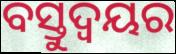
ବସ୍ତୁଦ୍ୱୟର